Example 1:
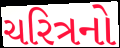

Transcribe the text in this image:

ચરિત્રનો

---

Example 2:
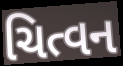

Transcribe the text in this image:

ચિત્વન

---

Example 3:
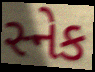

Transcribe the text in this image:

સ્નેક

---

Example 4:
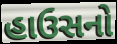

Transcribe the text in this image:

હાઉસનો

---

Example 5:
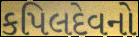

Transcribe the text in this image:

કપિલદેવનો